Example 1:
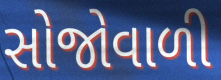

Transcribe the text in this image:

સોજોવાળી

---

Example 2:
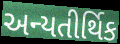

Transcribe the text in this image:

અન્યતીર્થિક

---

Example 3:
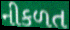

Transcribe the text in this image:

નીકળત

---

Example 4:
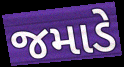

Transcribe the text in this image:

જમાડે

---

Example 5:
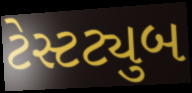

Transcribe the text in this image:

ટેસ્ટટ્યુબ